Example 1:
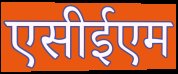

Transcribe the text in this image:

एसीईएम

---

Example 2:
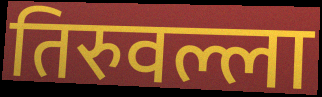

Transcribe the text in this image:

तिरुवल्ला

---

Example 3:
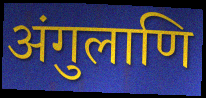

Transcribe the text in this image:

अंगुलाणि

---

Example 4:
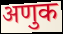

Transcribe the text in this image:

अणुक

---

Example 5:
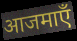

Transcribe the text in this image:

आजमाएँ